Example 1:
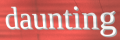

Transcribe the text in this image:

daunting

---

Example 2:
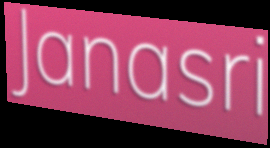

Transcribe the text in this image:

Janasri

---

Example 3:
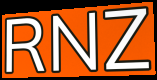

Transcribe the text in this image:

RNZ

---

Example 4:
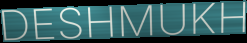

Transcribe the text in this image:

DESHMUKH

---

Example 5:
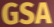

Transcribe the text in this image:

GSA